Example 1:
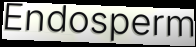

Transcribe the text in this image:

Endosperm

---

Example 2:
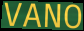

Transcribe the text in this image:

VANO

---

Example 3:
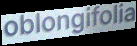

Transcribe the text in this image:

oblongifolia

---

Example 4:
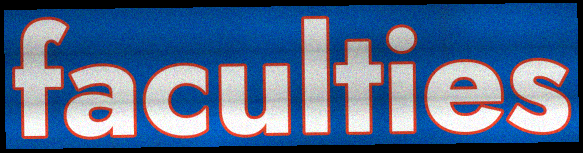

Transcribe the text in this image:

faculties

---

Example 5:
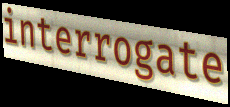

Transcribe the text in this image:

interrogate